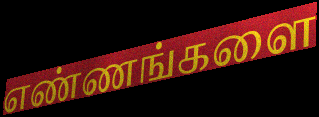
எண்ணங்களை